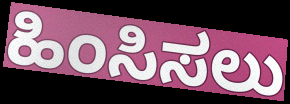
ಹಿಂಸಿಸಲು